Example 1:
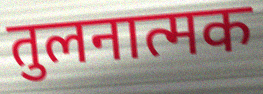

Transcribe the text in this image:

तुलनात्मक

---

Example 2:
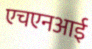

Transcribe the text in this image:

एचएनआई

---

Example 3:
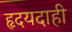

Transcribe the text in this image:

हृदयदाही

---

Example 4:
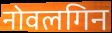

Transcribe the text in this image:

नोवलगिन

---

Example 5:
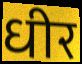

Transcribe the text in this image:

धीर